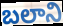
బలాని